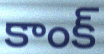
కాంక్